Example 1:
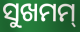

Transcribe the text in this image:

ସୁଖମମ୍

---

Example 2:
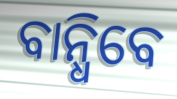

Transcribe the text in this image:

ବାନ୍ଧିବେ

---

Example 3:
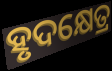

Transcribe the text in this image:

ହୃଦକ୍ଷେତ୍ର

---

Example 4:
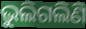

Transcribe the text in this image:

ଭୁଲିଗଲିଣି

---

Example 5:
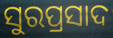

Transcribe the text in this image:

ସୁରପ୍ରସାଦ